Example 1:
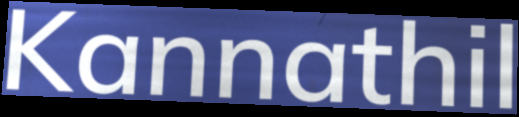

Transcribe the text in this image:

Kannathil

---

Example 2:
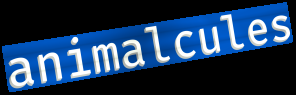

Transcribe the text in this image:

animalcules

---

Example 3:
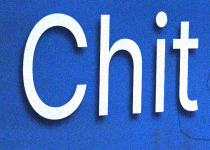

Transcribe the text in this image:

Chit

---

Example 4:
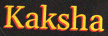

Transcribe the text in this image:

Kaksha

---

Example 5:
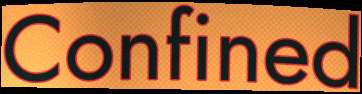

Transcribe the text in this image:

Confined